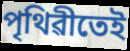
পৃথিৱীতেই